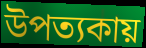
উপত্যকায়